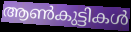
ആൺകുട്ടികൾ